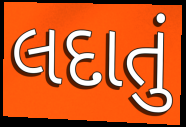
લદાતું